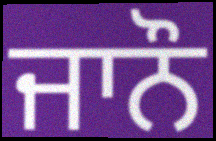
ਜਾਨੌ